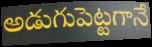
అడుగుపెట్టగానే